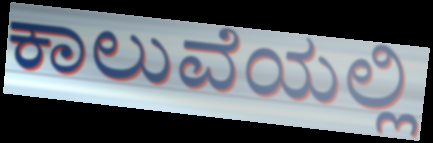
ಕಾಲುವೆಯಲ್ಲಿ